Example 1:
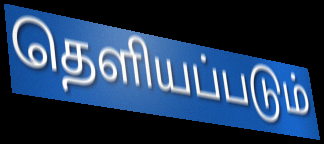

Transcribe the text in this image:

தெளியப்படும்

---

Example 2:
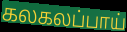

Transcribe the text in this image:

கலகலப்பாய்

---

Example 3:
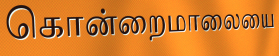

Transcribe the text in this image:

கொன்றைமாலையை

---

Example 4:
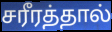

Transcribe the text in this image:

சரீரத்தால்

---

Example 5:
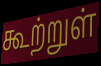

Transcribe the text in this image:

கூற்றுள்